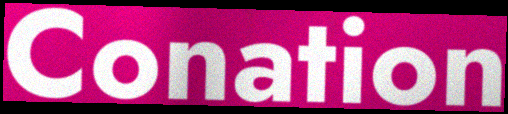
Conation